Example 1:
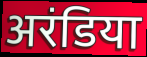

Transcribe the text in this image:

अरंडिया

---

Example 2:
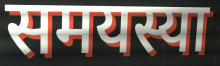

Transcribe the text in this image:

समयस्या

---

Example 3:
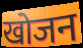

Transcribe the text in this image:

खोजन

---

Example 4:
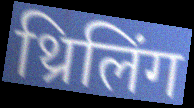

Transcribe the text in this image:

थ्रिलिंग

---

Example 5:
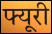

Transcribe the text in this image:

फ्यूरी